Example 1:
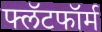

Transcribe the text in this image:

फ्लॅटफॉर्म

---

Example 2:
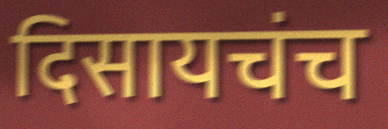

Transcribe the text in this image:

दिसायचंच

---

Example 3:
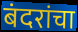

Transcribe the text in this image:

बंदरांचा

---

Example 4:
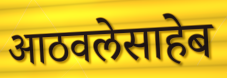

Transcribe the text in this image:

आठवलेसाहेब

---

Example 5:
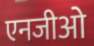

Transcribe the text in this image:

एनजीओ